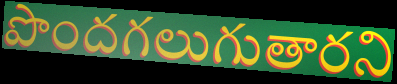
పొందగలుగుతారని